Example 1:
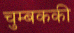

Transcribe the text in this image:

चुम्बककी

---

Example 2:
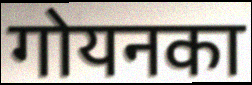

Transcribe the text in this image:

गोयनका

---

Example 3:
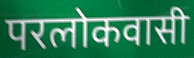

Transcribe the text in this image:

परलोकवासी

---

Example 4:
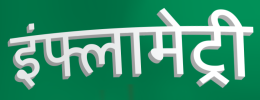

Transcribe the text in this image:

इंफ्लामेट्री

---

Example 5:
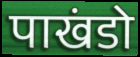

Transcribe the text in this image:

पाखंडो